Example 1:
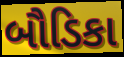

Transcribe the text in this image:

બૌડિકા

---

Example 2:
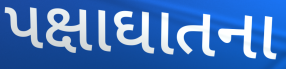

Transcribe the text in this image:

પક્ષાઘાતના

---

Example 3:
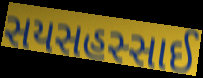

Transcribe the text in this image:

સયસહસ્સાઈ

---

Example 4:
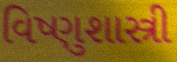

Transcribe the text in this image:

વિષ્ણુશાસ્ત્રી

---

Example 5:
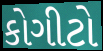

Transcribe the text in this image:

કોગીટો